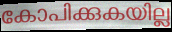
കോപിക്കുകയില്ല